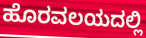
ಹೊರವಲಯದಲ್ಲಿ